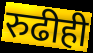
रुढीही